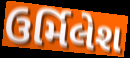
ઉર્મિલેશ